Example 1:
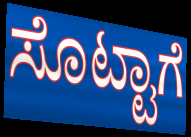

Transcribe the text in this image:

ಸೊಟ್ಟಾಗೆ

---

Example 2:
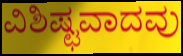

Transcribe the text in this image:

ವಿಶಿಷ್ಟವಾದವು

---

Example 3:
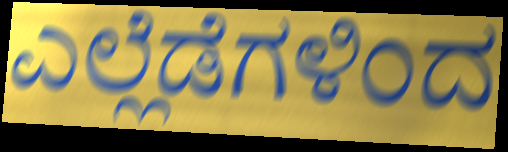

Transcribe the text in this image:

ಎಲ್ಲೆಡೆಗಳಿಂದ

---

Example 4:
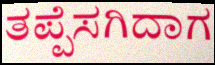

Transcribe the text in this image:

ತಪ್ಪೆಸಗಿದಾಗ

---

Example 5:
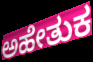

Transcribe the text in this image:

ಅಹೇತುಕ